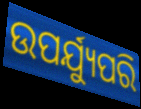
ଉପର୍ଯ୍ୟୁପରି